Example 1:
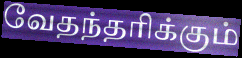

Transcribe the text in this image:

வேதந்தரிக்கும்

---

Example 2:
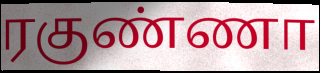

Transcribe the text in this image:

ரகுண்ணா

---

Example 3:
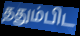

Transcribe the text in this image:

ததும்பிட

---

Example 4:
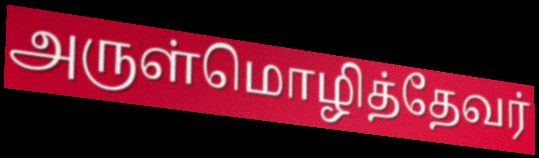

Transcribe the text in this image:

அருள்மொழித்தேவர்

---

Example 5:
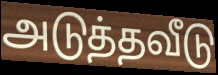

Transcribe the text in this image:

அடுத்தவீடு